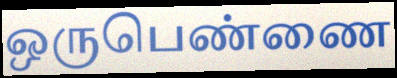
ஒருபெண்ணை